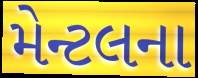
મેન્ટલના